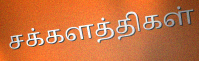
சக்களத்திகள்